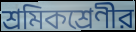
শ্রমিকশ্রেণীর